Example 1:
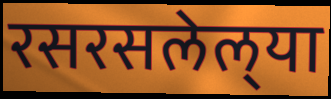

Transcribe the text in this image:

रसरसलेल्या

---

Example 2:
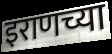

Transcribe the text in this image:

इराणच्या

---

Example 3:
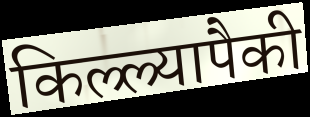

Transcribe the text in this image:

किल्ल्यापैकी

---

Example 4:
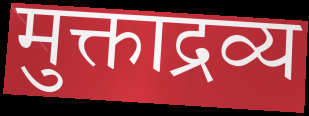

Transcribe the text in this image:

मुक्ताद्रव्य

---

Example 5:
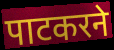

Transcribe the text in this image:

पाटकरने